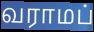
வராமப்